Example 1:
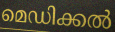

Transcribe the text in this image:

മെഡിക്കൽ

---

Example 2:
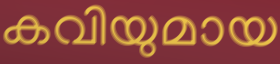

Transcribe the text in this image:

കവിയുമായ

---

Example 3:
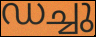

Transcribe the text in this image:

ഡച്ചു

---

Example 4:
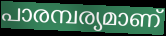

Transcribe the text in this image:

പാരമ്പര്യമാണ്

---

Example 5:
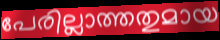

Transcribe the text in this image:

പേരില്ലാത്തതുമായ